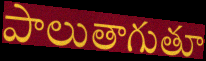
పాలుతాగుతూ